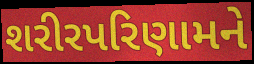
શરીરપરિણામને